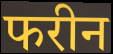
फरीन